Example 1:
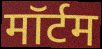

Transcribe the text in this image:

मॉर्टम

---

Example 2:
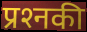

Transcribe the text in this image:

प्रश्नकी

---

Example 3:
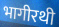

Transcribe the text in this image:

भागीरथी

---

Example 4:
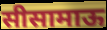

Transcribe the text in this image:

सीसामाऊ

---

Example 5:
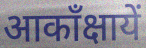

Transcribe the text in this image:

आकाँक्षायें